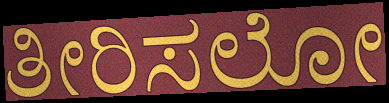
ತೀರಿಸಲೋ